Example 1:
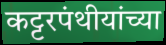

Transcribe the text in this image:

कट्टरपंथीयांच्या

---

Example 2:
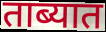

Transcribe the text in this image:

ताब्यात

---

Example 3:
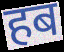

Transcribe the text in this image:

हब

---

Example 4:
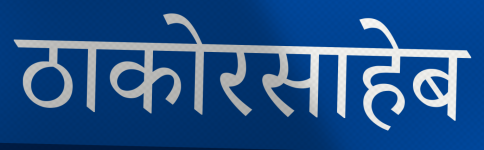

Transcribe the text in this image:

ठाकोरसाहेब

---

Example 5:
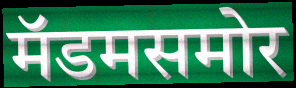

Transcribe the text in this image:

मॅडमसमोर